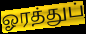
ஓரத்துப்